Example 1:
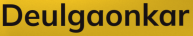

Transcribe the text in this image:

Deulgaonkar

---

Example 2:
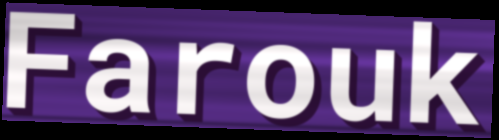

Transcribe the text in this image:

Farouk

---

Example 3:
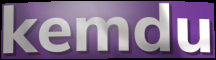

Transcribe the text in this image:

kemdu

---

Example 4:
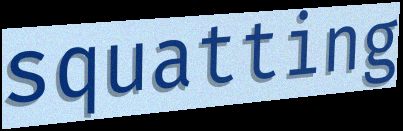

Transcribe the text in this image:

squatting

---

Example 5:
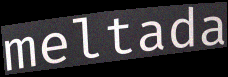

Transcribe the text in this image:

meltada